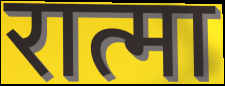
रात्मा